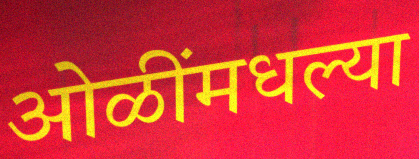
ओळींमधल्या